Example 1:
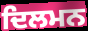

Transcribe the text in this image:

ਦਿਲਮਨ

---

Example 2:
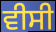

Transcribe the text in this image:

ਵੀਸੀ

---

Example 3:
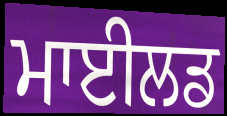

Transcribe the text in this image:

ਮਾਈਲਡ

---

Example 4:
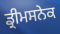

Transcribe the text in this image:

ਡ੍ਰੀਮਸਨੇਕ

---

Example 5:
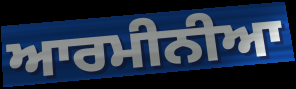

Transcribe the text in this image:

ਆਰਮੀਨੀਆ